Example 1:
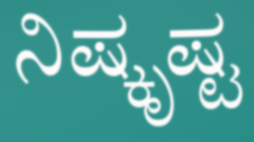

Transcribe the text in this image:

ನಿಷ್ಕೃಷ್ಟ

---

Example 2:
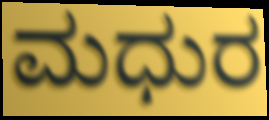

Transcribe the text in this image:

ಮಧುರ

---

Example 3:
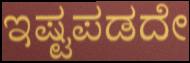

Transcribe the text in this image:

ಇಷ್ಟಪಡದೇ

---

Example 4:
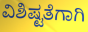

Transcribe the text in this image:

ವಿಶಿಷ್ಟತೆಗಾಗಿ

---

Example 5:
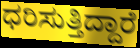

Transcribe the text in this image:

ಧರಿಸುತ್ತಿದ್ದಾರೆ